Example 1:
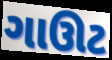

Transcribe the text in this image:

ગાઊટ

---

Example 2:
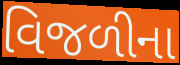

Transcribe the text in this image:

વિજળીના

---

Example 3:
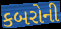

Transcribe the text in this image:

કબરોની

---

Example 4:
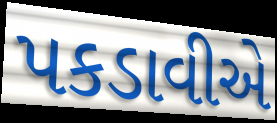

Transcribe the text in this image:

પકડાવીએ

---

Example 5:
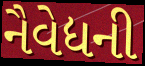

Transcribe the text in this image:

નૈવેદ્યની